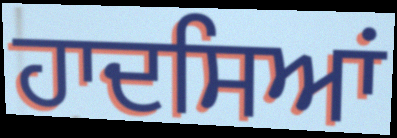
ਹਾਦਸਿਆਂ